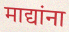
माद्यांना